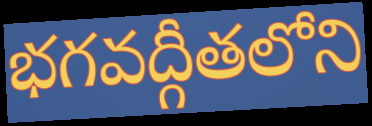
భగవద్గీతలోని